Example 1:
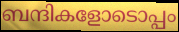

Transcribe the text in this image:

ബന്ദികളോടൊപ്പം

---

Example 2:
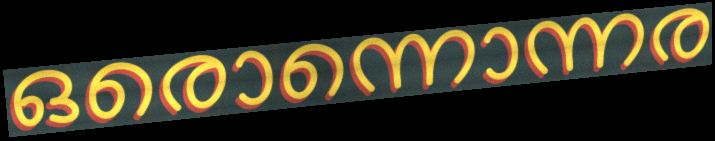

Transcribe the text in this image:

ഒരൊന്നൊന്നര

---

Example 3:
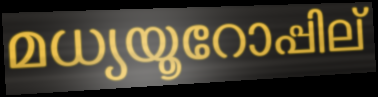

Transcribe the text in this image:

മധ്യയൂറോപ്പില്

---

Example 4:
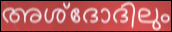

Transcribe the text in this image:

അശ്ദോദിലും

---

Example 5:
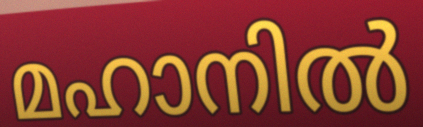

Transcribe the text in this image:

മഹാനിൽ